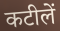
कटीलें